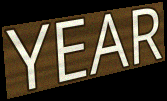
YEAR